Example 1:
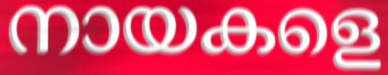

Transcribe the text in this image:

നായകളെ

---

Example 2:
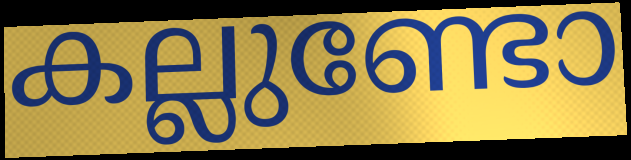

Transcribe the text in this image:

കല്ലുണ്ടോ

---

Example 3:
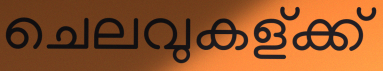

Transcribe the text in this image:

ചെലവുകള്ക്ക്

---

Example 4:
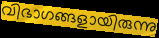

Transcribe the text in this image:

വിഭാഗങ്ങളായിരുന്നു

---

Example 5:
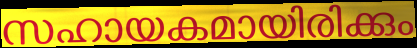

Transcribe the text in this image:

സഹായകമായിരിക്കും